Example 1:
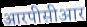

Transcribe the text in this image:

आरपीसीआर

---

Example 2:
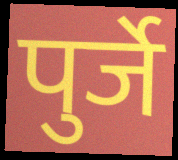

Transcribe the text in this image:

पुर्जे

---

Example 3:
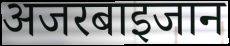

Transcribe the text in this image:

अजरबाइजान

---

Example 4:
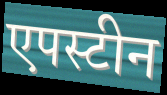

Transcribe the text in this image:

एपस्टीन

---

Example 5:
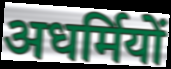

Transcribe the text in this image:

अधर्मियों